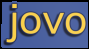
jovo